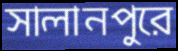
সালানপুরে